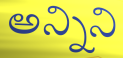
అన్నిని